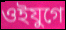
ওইযুগে